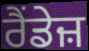
ਰੈਂਡੇਜ਼